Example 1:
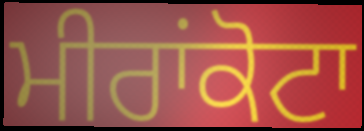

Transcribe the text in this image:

ਮੀਰਾਂਕੋਟਾ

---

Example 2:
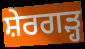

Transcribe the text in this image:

ਸ਼ੇਰਗੜ੍ਹ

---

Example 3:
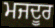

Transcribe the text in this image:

ਮਜਦੂਰ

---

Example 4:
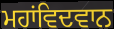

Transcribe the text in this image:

ਮਹਾਂਵਿਦਵਾਨ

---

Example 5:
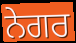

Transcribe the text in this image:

ਨੇਗਰ